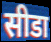
सीडा